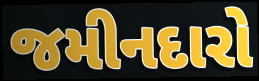
જમીનદારો